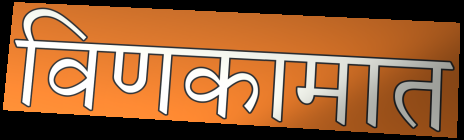
विणकामात